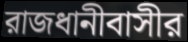
রাজধানীবাসীর